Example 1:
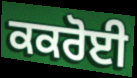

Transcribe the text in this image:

ਕਕਰੋਈ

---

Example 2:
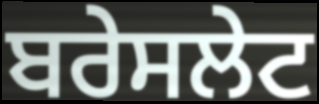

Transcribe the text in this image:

ਬਰੇਸਲੇਟ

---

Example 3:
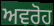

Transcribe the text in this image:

ਅਵਰੋਹ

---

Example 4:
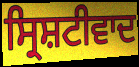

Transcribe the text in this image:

ਸ੍ਰਿਸ਼ਟੀਵਾਦ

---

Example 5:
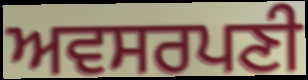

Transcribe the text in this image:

ਅਵਸਰਪਣੀ